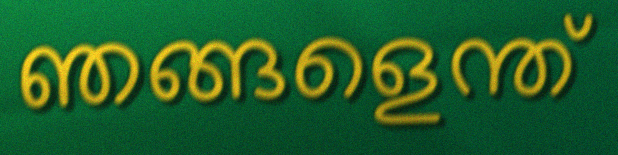
ഞങ്ങളെന്ത്